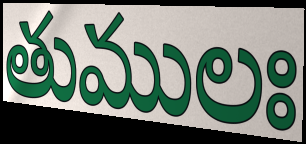
తుములః